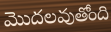
మొదలవుతోంది